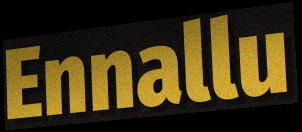
Ennallu